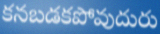
కనబడకపోవుదురు